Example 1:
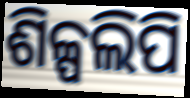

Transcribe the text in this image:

ଶିଳ୍ପଲିପି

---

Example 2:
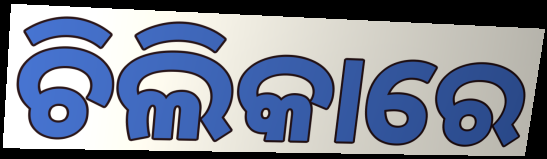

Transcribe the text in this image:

ଚିଲିକାରେ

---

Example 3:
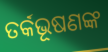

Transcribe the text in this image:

ତର୍କଭୂଷଣଙ୍କ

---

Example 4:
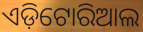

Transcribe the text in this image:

ଏଡ଼ିଟୋରିଆଲ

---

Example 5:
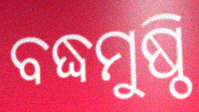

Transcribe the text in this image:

ବଦ୍ଧମୁଷ୍ଠି